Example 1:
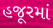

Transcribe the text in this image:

હજૂરમાં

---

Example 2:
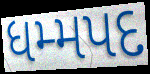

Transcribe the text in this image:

ધમ્મપદ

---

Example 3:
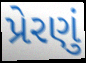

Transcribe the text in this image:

પ્રેરણું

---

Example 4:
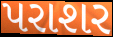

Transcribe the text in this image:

પરાશર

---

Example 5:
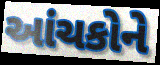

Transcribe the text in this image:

આંચકોને